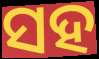
ସହ